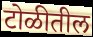
टोळीतील